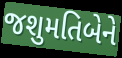
જશુમતિબેને